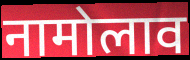
नामोलाव